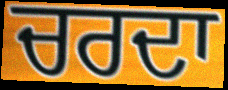
ਚਰਦਾ